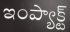
ఇంప్యాక్ట్